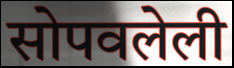
सोपवलेली